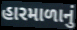
હારમાળાનું